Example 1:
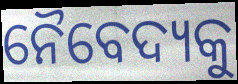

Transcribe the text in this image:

ନୈବେଦ୍ୟକୁ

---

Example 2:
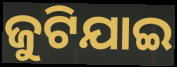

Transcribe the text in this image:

ଜୁଟିଯାଇ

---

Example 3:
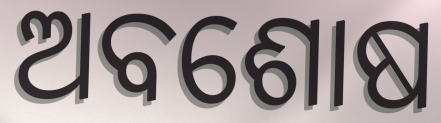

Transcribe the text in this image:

ଅବଶୋଷ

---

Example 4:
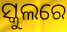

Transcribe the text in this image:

ସ୍କୁଲରେ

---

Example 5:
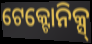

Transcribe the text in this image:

ଟେକ୍ଟୋନିକ୍ସ୍